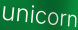
unicorn